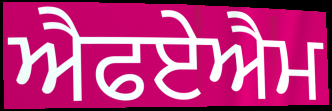
ਐਫਏਐਮ